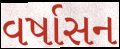
વર્ષાસન